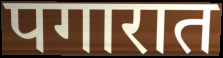
पगारात